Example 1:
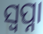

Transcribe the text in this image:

ସ୍ୱପ୍ନା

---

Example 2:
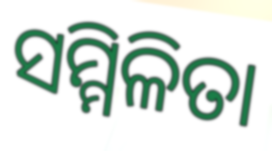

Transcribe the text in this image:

ସମ୍ମିଳିତା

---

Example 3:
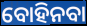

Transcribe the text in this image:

ବୋହିନବା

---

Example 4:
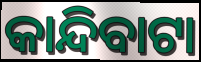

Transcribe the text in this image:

କାନ୍ଦିବାଟା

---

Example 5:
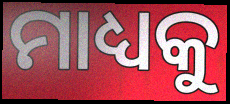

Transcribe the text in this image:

ମାଧ୍ୟକୁ